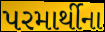
પરમાર્થીના